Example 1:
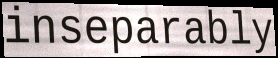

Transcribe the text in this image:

inseparably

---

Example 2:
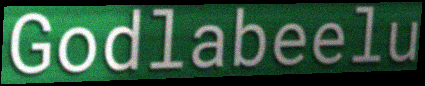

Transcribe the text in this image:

Godlabeelu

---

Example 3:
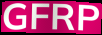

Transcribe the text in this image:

GFRP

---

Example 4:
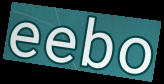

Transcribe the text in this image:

eebo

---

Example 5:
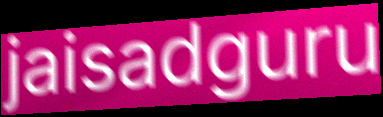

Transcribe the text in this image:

jaisadguru